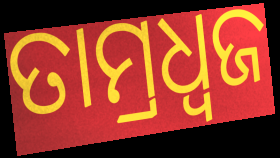
ତାମ୍ରଧ୍ୱଜ